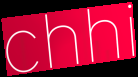
chhi